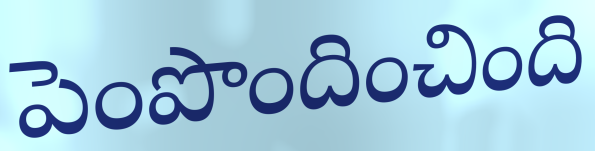
పెంపొందించింది